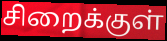
சிறைக்குள்